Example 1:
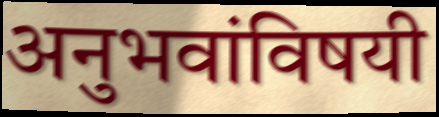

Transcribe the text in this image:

अनुभवांविषयी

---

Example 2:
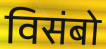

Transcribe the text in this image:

विसंबो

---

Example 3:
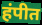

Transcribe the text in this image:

हंपीत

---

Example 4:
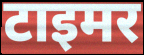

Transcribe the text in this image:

टाइमर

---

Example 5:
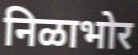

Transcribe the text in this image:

निळाभोर